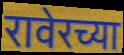
रावेरच्या